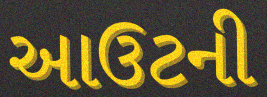
આઉટની